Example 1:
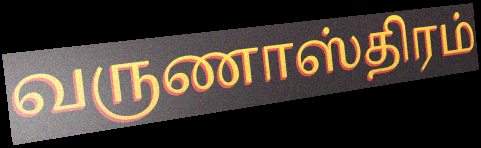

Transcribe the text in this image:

வருணாஸ்திரம்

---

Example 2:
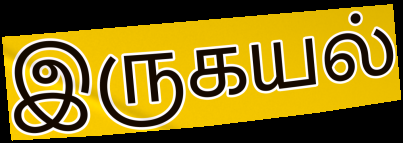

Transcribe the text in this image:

இருகயல்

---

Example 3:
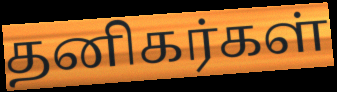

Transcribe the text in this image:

தனிகர்கள்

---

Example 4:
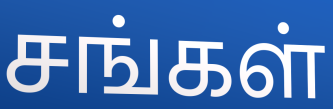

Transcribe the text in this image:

சங்கள்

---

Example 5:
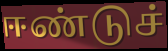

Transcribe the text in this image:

ஈண்டுச்